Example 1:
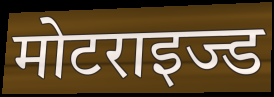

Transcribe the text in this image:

मोटराइज्ड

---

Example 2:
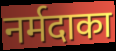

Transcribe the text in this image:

नर्मदाका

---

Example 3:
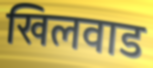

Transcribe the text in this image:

खिलवाड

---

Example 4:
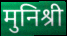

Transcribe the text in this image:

मुनिश्री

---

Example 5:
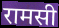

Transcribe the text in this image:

रामसी